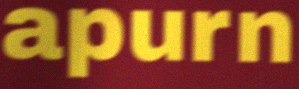
apurn